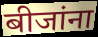
बीजांना